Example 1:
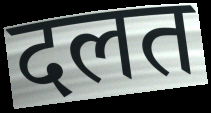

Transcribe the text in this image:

दलत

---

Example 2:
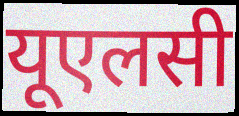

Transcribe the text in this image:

यूएलसी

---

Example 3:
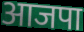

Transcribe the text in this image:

आजपा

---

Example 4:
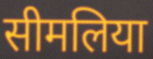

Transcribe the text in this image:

सीमलिया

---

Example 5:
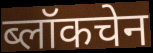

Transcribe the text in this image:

ब्लॉकचेन